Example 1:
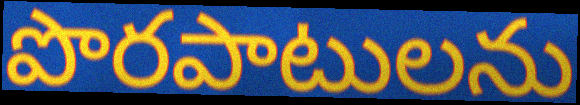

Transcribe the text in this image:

పొరపాటులను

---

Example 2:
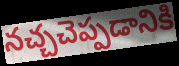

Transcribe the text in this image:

నచ్చచెప్పడానికి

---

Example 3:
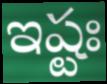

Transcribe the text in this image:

ఇష్టః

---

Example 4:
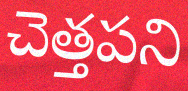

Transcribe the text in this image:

చెత్తపని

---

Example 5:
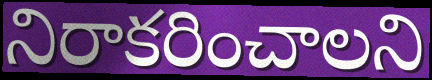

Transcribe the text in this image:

నిరాకరించాలని